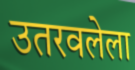
उतरवलेला